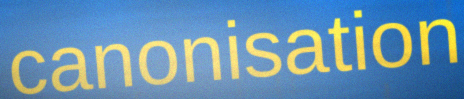
canonisation